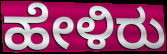
ಹೇಳಿರು